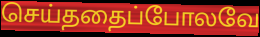
செய்ததைப்போலவே